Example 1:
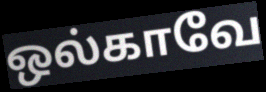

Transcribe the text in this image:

ஒல்காவே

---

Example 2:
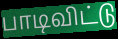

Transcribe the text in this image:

பாடிவிட்டு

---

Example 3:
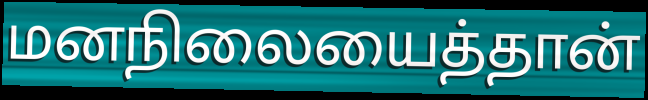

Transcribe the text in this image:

மனநிலையைத்தான்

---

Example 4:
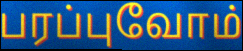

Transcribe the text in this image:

பரப்புவோம்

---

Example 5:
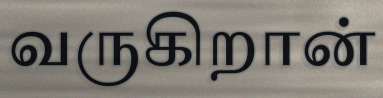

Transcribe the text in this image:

வருகிறான்